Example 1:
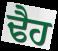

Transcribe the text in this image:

ਢੈਹ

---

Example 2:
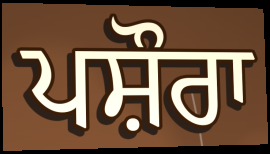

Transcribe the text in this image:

ਪਸ਼ੌਰਾ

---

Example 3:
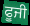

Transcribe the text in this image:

ਫੂਜੀ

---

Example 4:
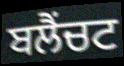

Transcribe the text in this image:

ਬਲੈਂਚਟ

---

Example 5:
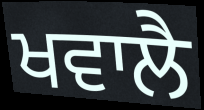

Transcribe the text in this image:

ਖਵਾਲੈ